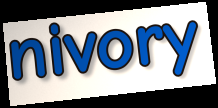
nivory